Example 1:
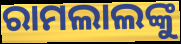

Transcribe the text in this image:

ରାମଲାଲଙ୍କୁ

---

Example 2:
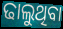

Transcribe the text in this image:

ଢାଲୁଥିବା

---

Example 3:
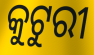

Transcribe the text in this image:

କୁଟୁରୀ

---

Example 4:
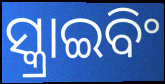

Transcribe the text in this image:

ସ୍କ୍ରାଇବିଂ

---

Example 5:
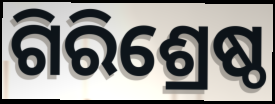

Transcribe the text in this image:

ଗିରିଶ୍ରେଷ୍ଠ